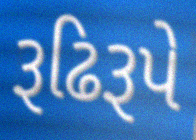
રૂઢિરૂપે